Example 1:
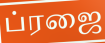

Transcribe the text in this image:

ப்ரஜை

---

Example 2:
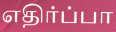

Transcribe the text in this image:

எதிர்ப்பா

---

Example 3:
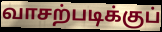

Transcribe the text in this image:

வாசற்படிக்குப்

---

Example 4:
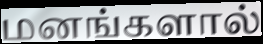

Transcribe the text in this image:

மனங்களால்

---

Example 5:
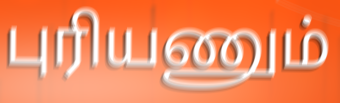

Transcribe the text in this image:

புரியணும்